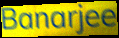
Banarjee